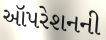
ઑપરેશનની